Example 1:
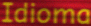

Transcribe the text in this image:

Idioma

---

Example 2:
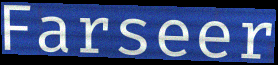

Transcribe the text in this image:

Farseer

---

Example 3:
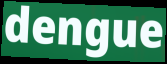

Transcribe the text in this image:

dengue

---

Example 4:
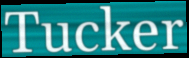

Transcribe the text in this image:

Tucker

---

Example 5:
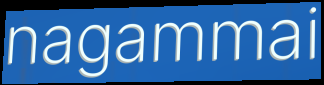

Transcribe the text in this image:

nagammai